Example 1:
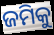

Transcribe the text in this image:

ଜମିକୁ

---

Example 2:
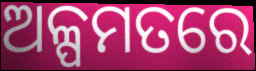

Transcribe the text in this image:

ଅଳ୍ପମତରେ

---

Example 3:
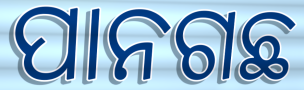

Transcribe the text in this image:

ପାନଗଛ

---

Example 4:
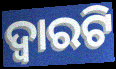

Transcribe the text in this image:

ଦ୍ୱାରଟି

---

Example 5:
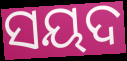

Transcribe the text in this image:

ସୟଦ